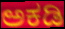
ಅಕಡಿ